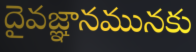
దైవజ్ఞానమునకు